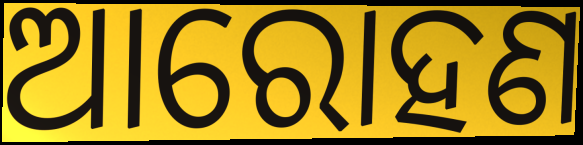
ଆରୋହଣ